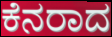
ಕೆನರಾದ